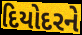
દિયોદરને